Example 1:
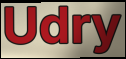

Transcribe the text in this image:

Udry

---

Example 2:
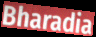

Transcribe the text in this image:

Bharadia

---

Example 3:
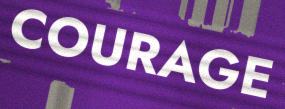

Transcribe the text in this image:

COURAGE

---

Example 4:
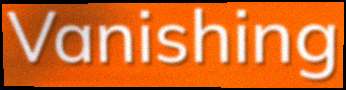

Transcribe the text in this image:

Vanishing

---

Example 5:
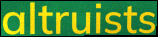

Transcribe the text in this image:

altruists